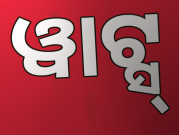
ୱାଟ୍ସ୍